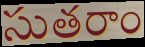
సుతరాం